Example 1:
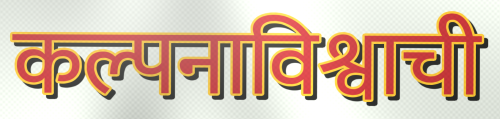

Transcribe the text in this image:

कल्पनाविश्वाची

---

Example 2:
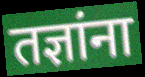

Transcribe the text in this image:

तज्ञांना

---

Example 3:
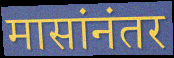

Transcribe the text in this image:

मासांनंतर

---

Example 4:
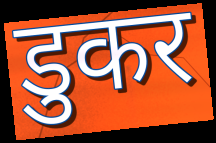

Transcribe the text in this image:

डुकर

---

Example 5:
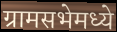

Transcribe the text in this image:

ग्रामसभेमध्ये